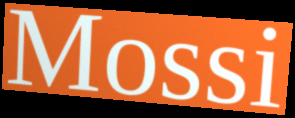
Mossi